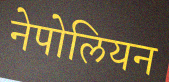
नेपोलियन